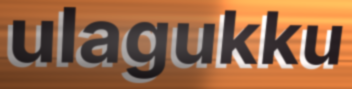
ulagukku